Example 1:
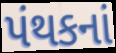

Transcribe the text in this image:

પંથકનાં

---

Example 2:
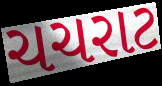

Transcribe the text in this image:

ચચરાટ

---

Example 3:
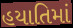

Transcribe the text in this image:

હયાતિમાં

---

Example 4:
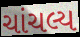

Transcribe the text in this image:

ચાંચલ્ય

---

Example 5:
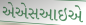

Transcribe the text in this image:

એએસઆઇએ